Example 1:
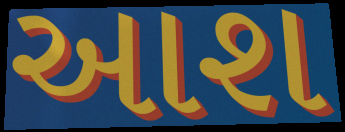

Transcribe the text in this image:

આશ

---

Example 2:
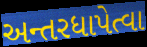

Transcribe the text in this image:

અન્તરધાપેત્વા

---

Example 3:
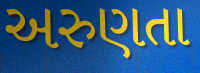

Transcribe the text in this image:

અરુણતા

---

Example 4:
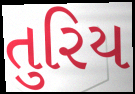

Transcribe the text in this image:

તુરિય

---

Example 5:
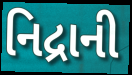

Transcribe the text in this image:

નિદ્રાની